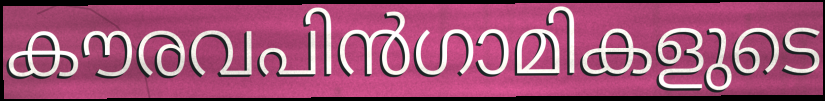
കൗരവപിൻഗാമികളുടെ